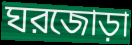
ঘরজোড়া